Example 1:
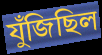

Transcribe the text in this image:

যুঁজিছিল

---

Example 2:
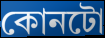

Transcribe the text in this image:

কোনটো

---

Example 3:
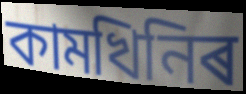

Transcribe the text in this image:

কামখিনিৰ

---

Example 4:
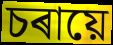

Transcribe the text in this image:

চৰায়ে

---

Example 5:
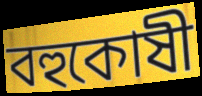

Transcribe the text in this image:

বহুকোষী